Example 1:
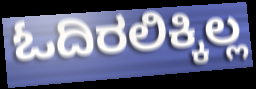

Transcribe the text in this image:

ಓದಿರಲಿಕ್ಕಿಲ್ಲ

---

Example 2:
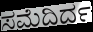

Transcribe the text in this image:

ಸಮೆದಿರ್ದ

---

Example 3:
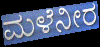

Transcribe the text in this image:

ಮಳೆನೀರ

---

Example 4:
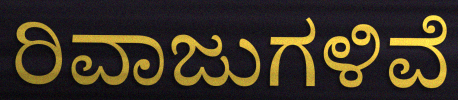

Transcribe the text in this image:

ರಿವಾಜುಗಳಿವೆ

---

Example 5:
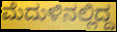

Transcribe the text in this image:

ಮೆದುಳಿನಲ್ಲಿದ್ದ